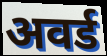
अवर्ड